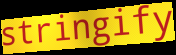
stringify